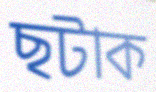
ছটাক